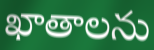
ఖాతాలను